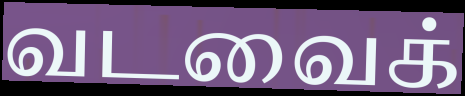
வடவைக்